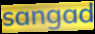
sangad